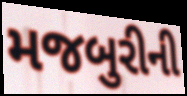
મજબુરીની